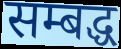
सम्बद्ध